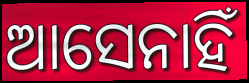
ଆସେନାହିଁ